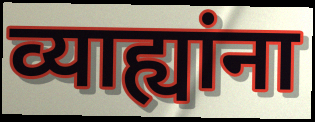
व्याह्यांना